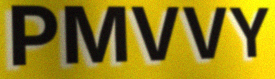
PMVVY